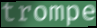
trompe